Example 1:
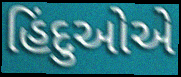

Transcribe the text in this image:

હિંદુઓએ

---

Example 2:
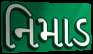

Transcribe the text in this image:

નિમાડ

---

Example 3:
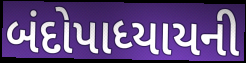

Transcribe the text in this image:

બંદોપાધ્યાયની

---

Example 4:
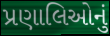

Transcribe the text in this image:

પ્રણાલિઓનું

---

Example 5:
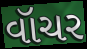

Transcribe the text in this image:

વૉચર